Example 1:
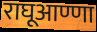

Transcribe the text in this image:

राघूआण्णा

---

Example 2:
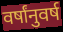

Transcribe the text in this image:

वर्षांनुवर्ष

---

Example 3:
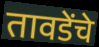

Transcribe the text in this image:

तावडेंचे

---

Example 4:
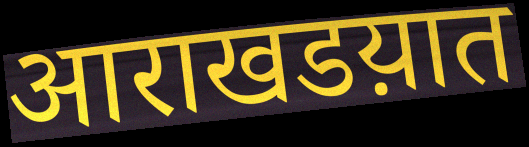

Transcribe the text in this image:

आराखडय़ात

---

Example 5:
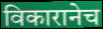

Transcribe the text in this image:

विकारानेच